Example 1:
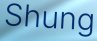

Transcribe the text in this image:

Shung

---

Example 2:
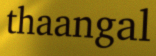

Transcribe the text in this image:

thaangal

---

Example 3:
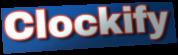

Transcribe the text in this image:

Clockify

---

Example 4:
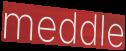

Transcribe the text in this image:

meddle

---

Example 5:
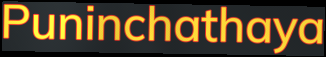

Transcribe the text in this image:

Puninchathaya